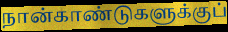
நான்காண்டுகளுக்குப்